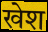
खेश